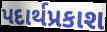
પદાર્થપ્રકાશ